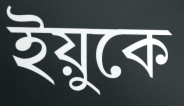
ইয়ুকে